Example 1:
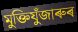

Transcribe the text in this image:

মুক্তিযুঁজাৰুৰ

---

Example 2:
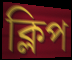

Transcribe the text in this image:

ক্লিপ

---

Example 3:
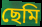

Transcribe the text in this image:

ছেমি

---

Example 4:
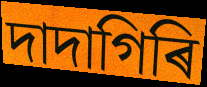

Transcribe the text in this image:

দাদাগিৰি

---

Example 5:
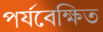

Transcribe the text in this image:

পৰ্যবেক্ষিত